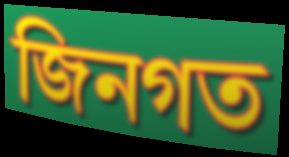
জিনগত